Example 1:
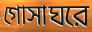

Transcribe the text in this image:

গোসাঘরে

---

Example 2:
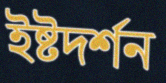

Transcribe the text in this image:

ইষ্টদর্শন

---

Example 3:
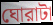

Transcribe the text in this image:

ঘোরাটা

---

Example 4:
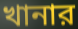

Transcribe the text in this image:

খানার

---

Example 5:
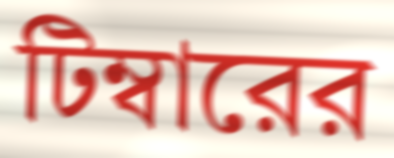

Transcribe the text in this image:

টিম্বারের